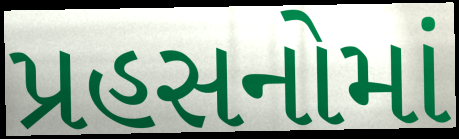
પ્રહસનોમાં